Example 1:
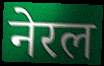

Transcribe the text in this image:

नेरल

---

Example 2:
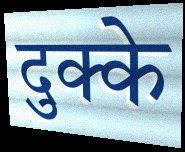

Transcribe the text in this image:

दुक्के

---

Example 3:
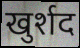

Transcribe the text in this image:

खुर्शद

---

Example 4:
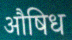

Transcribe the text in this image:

औषिध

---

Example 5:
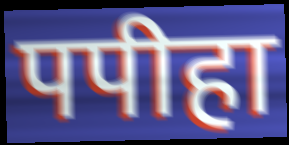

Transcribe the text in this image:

पपीहा